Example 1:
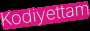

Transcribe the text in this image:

Kodiyettam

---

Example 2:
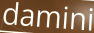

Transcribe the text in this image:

damini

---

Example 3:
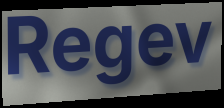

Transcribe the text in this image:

Regev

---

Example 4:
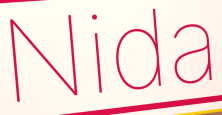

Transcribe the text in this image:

Nida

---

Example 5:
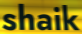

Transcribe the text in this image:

shaik